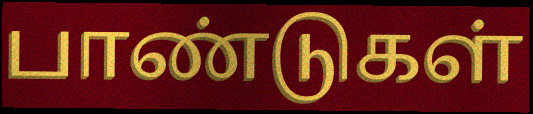
பாண்டுகள்